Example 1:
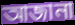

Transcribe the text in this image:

আজানা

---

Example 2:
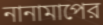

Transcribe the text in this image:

নানামাপের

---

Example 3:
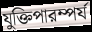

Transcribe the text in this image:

যুক্তিপারম্পর্য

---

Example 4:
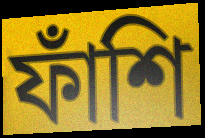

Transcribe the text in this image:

ফাঁশি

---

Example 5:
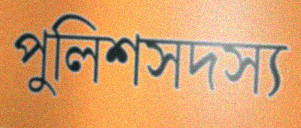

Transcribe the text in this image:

পুলিশসদস্য